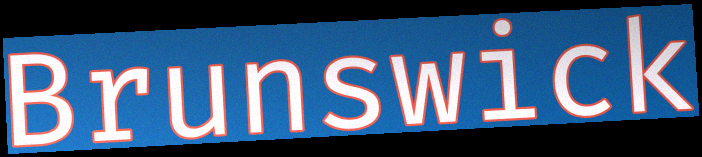
Brunswick